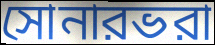
সোনারভরা